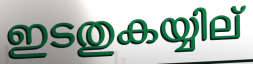
ഇടതുകയ്യില്